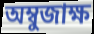
অম্বুজাক্ষ